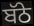
ਬੱਠੇ